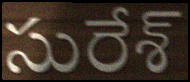
సురేశ్